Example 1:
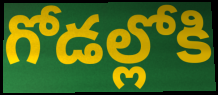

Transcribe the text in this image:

గోడల్లోకి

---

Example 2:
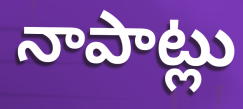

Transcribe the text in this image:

నాపాట్లు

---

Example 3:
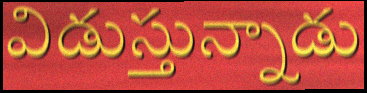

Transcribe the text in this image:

విడుస్తున్నాడు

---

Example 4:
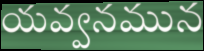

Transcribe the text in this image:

యవ్వనమున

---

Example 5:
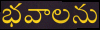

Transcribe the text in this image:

భవాలను